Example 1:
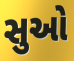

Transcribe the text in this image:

સુઓ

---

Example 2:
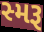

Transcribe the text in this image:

સ્મરૂ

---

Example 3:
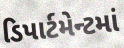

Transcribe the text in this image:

ડિપાર્ટમેન્ટમાં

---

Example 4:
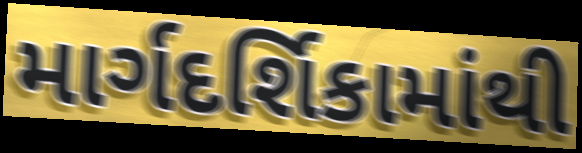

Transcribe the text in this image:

માર્ગદર્શિકામાંથી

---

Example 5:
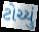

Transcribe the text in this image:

ટોચ્યું